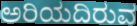
ಅರಿಯದಿರುವ